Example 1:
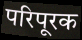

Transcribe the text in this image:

परिपूरक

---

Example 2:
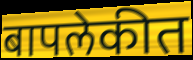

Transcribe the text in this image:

बापलेकीत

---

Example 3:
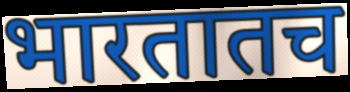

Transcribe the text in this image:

भारतातच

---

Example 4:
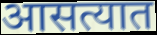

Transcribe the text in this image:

आसत्यात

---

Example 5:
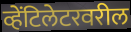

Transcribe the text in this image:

व्हेंटिलेटरवरील